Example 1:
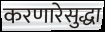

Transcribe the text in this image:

करणारेसुद्धा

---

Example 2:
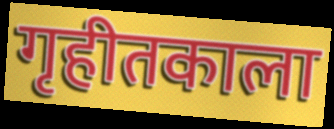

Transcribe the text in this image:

गृहीतकाला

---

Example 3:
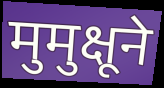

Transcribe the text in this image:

मुमुक्षूने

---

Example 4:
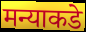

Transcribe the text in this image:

मन्याकडे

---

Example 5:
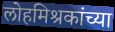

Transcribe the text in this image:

लोहमिश्रकांच्या